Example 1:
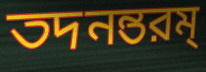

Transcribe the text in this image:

তদনন্তরম্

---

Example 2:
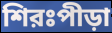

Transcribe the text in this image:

শিরঃপীড়া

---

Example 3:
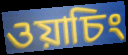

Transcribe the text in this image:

ওয়াচিং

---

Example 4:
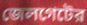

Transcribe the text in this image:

জেলগেটের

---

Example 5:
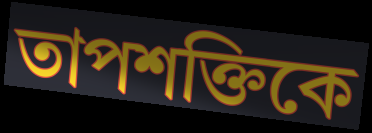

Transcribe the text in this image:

তাপশক্তিকে